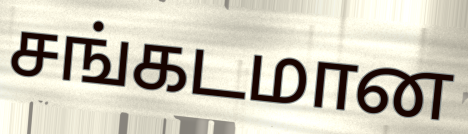
சங்கடமான